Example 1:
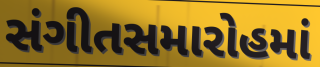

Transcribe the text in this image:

સંગીતસમારોહમાં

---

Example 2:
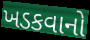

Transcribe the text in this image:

ખડકવાનો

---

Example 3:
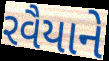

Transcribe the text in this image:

રવૈયાને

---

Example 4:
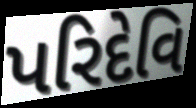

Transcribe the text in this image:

પરિદેવિ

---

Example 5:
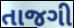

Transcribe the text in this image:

તાજગી